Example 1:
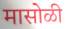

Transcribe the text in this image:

मासोळी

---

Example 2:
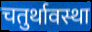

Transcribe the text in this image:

चतुर्थावस्था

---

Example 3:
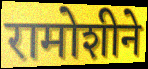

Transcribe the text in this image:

रामोशीने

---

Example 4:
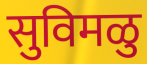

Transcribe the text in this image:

सुविमळु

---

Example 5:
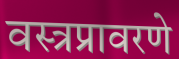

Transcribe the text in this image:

वस्त्रप्रावरणे